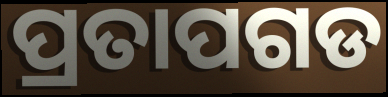
ପ୍ରତାପଗଡ